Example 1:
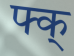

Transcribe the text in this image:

फ्क्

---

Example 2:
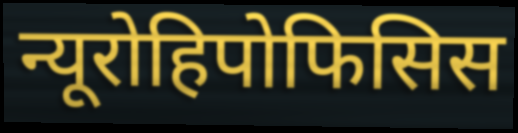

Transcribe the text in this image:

न्यूरोहिपोफिसिस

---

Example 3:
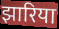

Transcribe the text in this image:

झारिया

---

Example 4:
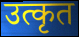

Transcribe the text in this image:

उत्कृत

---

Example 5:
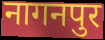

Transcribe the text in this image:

नागनपुर